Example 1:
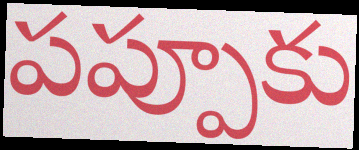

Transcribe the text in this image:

పప్పూకు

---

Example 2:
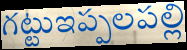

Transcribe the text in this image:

గట్టుఇప్పలపల్లి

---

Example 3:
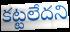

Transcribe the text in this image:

కట్టలేదని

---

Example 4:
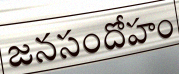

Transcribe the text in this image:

జనసందోహం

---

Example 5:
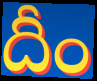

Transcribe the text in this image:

దీం